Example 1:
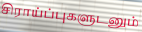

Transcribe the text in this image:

சிராய்ப்புகளுடனும்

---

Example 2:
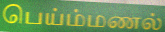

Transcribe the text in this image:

பெய்ம்மணல்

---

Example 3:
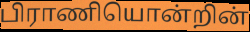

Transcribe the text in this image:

பிராணியொன்றின்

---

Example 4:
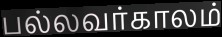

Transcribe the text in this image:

பல்லவர்காலம்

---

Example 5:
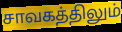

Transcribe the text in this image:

சாவகத்திலும்